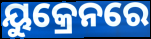
ୟୁକ୍ରେନରେ